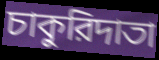
চাকুরিদাতা